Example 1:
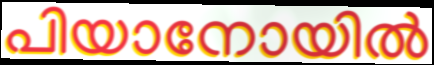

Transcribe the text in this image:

പിയാനോയിൽ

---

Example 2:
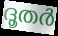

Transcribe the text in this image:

ദൂതർ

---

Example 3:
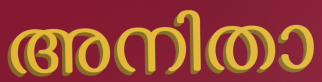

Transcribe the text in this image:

അനിതാ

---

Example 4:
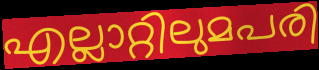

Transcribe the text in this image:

എല്ലാറ്റിലുമപരി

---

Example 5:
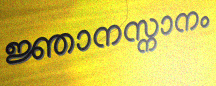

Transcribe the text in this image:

ജ്ഞാനസ്നാനം